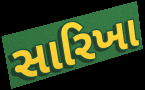
સારિખા